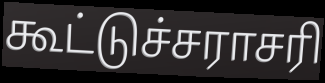
கூட்டுச்சராசரி